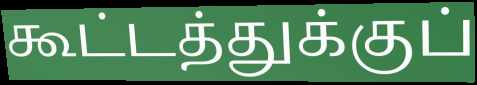
கூட்டத்துக்குப்